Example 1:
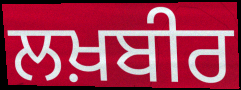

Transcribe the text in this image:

ਲਖ਼ਬੀਰ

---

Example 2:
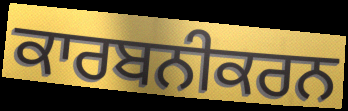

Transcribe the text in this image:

ਕਾਰਬਨੀਕਰਨ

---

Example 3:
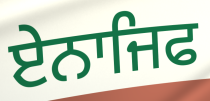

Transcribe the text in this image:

ਏਨਾਜਿਫ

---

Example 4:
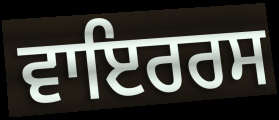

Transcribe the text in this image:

ਵਾਇਰਰਸ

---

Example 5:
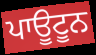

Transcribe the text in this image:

ਪਾਊਟੂਨ